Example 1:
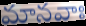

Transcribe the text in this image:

మానవాః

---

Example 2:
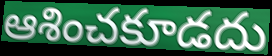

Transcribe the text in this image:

ఆశించకూడదు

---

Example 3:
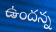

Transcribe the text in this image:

ఉందన్న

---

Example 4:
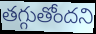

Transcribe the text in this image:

తగ్గుతోందని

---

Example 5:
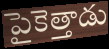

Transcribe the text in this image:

పైకెత్తాడు